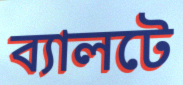
ব্যালটে